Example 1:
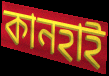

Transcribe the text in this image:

কানহাই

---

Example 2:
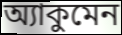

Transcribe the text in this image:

অ্যাকুমেন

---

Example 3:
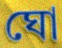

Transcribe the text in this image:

ঘো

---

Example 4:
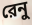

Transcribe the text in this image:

রেনু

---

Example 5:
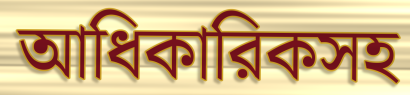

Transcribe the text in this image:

আধিকারিকসহ